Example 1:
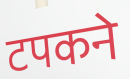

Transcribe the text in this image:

टपकने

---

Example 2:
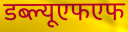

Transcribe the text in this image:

डब्ल्यूएफएफ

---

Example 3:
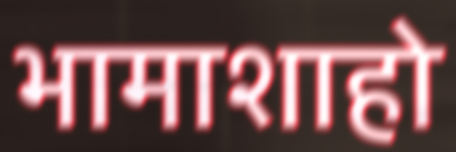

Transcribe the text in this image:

भामाशाहो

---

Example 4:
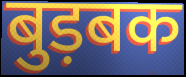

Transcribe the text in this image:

बुड़बक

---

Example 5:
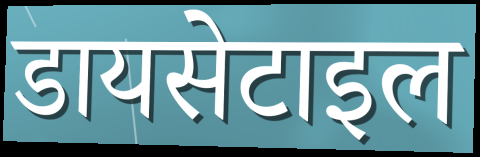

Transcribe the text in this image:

डायसेटाइल